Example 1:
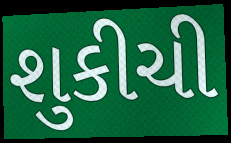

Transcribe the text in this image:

શુકીચી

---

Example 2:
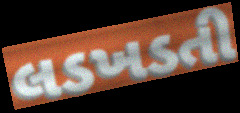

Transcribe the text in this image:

લડખડતી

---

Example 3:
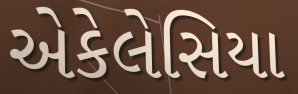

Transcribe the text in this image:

એકેલેસિયા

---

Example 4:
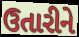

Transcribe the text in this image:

ઉતારીને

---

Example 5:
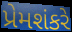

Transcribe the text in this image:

પ્રેમશંકરે